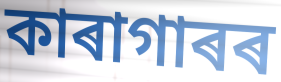
কাৰাগাৰৰ